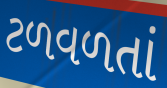
ટળવળતાં